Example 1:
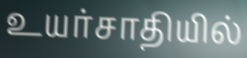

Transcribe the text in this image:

உயர்சாதியில்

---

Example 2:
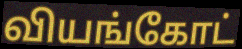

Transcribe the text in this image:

வியங்கோட்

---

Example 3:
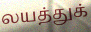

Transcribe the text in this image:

லயத்துக்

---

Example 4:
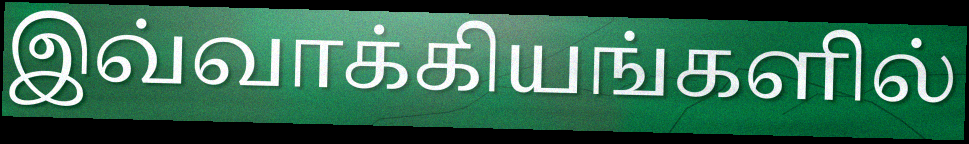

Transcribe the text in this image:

இவ்வாக்கியங்களில்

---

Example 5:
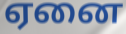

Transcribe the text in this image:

ஏனை